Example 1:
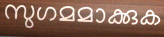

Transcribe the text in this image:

സുഗമമാക്കുക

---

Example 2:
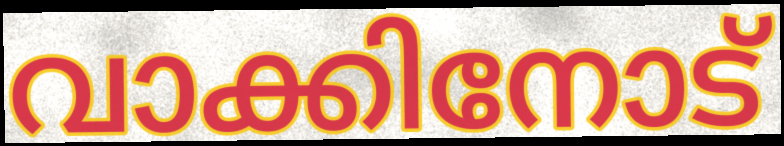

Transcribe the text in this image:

വാക്കിനോട്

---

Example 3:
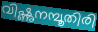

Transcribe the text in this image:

വിഷ്ണുനമ്പൂതിരി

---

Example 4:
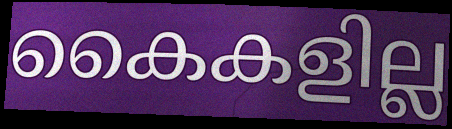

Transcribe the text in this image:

കൈകളില്ല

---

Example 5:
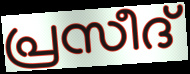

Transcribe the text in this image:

പ്രസീദ്